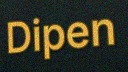
Dipen